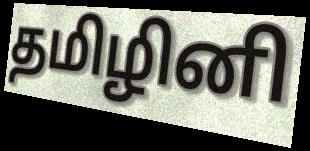
தமிழினி